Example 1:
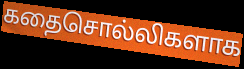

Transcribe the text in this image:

கதைசொல்லிகளாக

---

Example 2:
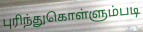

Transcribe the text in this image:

புரிந்துகொள்ளும்படி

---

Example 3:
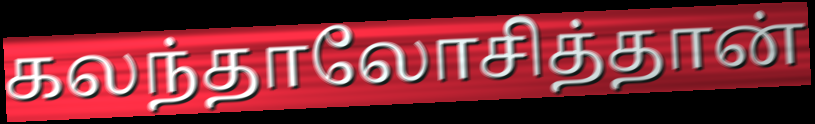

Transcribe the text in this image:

கலந்தாலோசித்தான்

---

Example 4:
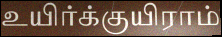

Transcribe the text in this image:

உயிர்க்குயிராம்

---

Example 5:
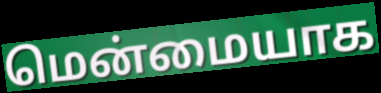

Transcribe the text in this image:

மென்மையாக